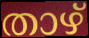
താഴ്